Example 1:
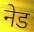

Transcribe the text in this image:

नेड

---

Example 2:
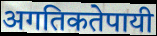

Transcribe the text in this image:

अगतिकतेपायी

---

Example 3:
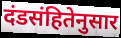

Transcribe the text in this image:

दंडसंहितेनुसार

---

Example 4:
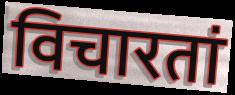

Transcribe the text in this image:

विचारतां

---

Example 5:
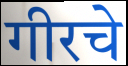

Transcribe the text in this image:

गीरचे